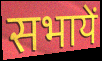
सभायें